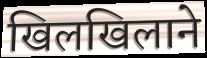
खिलखिलाने